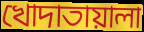
খোদাতায়ালা